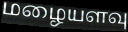
மழையளவு